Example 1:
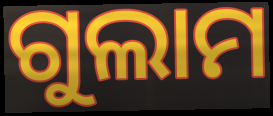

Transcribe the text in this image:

ଗୁଲାମ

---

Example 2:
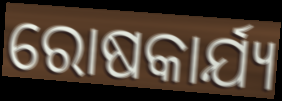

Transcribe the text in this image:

ରୋଷକାର୍ଯ୍ୟ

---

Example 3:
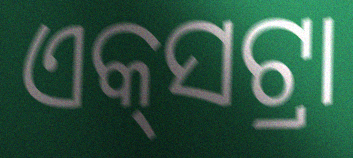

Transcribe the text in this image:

ଏକ୍‍ସଟ୍ରା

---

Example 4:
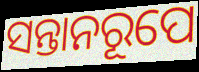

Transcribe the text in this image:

ସନ୍ତାନରୂପେ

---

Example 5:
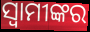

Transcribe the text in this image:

ସ୍ୱାମୀଙ୍କର